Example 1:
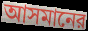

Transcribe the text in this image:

আসমানের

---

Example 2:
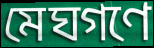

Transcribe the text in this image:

মেঘগণে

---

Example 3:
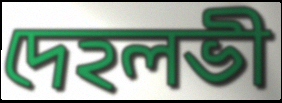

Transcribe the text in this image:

দেহলভী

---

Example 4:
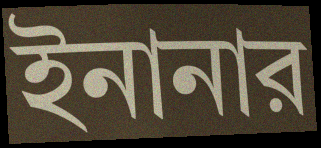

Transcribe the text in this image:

ইনানার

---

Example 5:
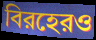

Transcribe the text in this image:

বিরহেরও